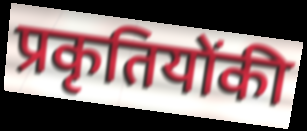
प्रकृतियोंकी